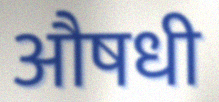
औषधी